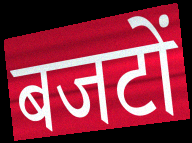
बजटों